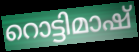
റൊട്ടിമാഷ്